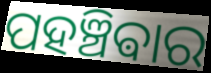
ପହଞ୍ଚିଵାର